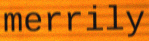
merrily